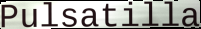
Pulsatilla